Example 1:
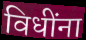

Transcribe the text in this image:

विधींना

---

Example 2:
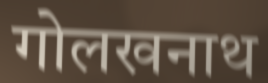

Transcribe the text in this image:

गोलखनाथ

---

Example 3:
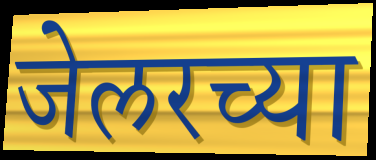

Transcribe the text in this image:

जेलरच्या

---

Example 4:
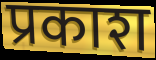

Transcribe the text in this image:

प्रकाश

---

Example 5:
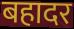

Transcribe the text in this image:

बहादर